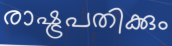
രാഷ്ട്രപതിക്കും